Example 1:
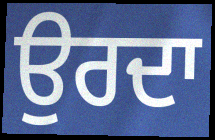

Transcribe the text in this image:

ਉਰਦਾ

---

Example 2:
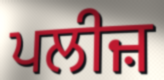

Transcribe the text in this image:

ਪਲੀਜ਼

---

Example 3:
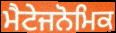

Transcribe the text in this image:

ਮੈਟੇਜਨੋਮਿਕ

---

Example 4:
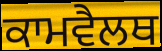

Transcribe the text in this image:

ਕਾਮਵੈਲਥ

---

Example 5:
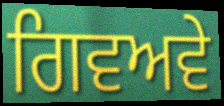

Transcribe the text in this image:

ਗਿਵਅਵੇ